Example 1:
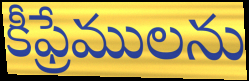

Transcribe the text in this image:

కీఫ్రేములను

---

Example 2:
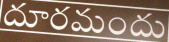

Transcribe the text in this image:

దూరమందు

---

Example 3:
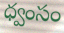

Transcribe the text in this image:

ధ్వంసం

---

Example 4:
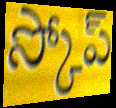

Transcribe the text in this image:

స్కోప్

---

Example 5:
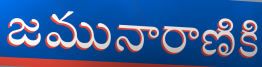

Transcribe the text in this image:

జమునారాణికి